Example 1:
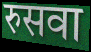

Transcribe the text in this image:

रुसवा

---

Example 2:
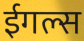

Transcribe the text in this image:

ईगल्स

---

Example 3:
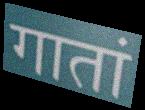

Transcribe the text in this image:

गातां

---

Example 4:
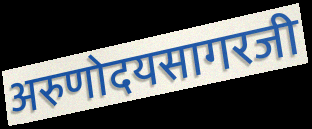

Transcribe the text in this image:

अरुणोदयसागरजी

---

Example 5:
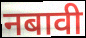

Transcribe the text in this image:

नबावी